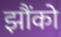
झौंको